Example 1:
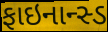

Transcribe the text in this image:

ફાઇનાન્સ્ડ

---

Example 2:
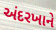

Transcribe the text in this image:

અંદરખાને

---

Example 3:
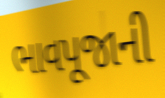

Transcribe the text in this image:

ભાવપૂજાની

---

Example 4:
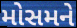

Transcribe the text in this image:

મોસમને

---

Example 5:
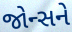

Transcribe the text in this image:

જોન્સને